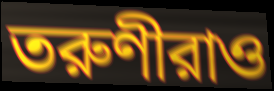
তরুণীরাও